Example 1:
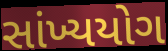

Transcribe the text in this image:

સાંખ્યયોગ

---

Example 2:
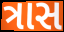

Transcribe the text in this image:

ત્રાસ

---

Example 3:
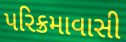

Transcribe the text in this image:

પરિક્રમાવાસી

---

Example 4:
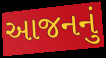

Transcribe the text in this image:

આજનનું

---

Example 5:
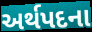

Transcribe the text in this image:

અર્થપદના